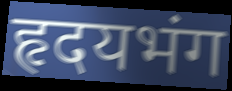
हृदयभंग